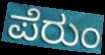
ಪೆರುಂ